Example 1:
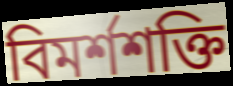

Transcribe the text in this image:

বিমর্শশক্তি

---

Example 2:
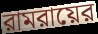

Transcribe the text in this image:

রামরায়ের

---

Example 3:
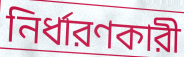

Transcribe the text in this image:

নির্ধারণকারী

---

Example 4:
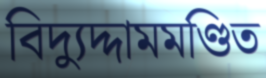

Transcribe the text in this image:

বিদ্যুদ্দামমণ্ডিত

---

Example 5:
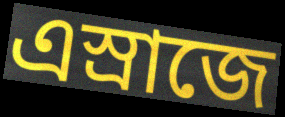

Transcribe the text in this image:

এস্রাজে